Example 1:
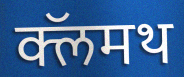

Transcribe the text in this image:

क्लॅमथ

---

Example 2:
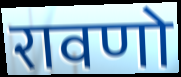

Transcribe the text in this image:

रावणो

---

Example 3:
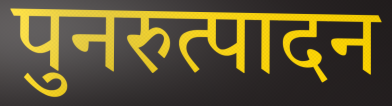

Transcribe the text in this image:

पुनरुत्पादन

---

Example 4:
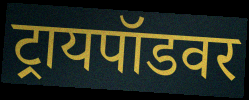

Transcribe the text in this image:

ट्रायपॉडवर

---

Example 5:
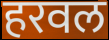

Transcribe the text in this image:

हरवल